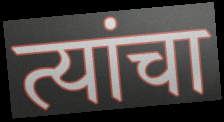
त्यांचा